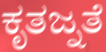
ಕೃತಜ್ನತೆ